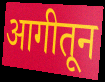
आगीतून